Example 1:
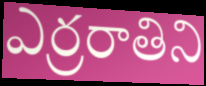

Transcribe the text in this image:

ఎర్రరాతిని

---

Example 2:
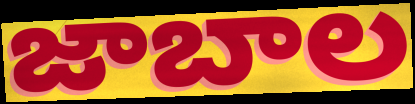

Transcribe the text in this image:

జాబాల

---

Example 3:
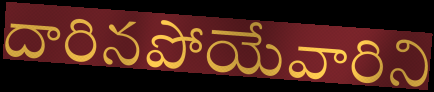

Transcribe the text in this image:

దారినపోయేవారిని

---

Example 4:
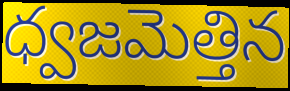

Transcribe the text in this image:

ధ్వజమెత్తిన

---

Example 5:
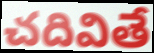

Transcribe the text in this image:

చదివితే